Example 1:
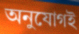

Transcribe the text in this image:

অনুযোগই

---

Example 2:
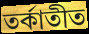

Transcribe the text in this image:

তর্কাতীত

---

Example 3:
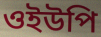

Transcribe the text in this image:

ওইউপি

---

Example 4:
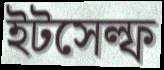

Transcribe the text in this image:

ইটসেল্ফ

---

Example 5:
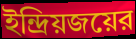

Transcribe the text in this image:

ইন্দ্রিয়জয়ের